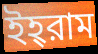
ইহ্‌রাম